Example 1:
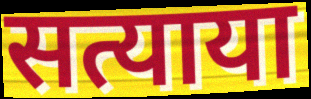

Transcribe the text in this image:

सत्याया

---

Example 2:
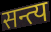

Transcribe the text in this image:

सन्त्य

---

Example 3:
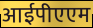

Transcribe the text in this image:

आईपीएएम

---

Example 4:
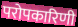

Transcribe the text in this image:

परोपकारिणी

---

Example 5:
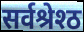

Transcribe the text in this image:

सर्वश्रेश्ठ